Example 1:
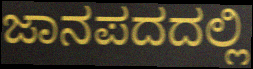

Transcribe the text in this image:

ಜಾನಪದದಲ್ಲಿ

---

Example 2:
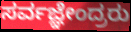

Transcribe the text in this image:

ಸರ್ವಜ್ಞೇಂದ್ರರು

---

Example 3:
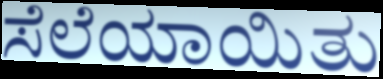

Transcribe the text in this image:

ಸೆಲೆಯಾಯಿತು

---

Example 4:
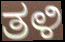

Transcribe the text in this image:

ತಳಿ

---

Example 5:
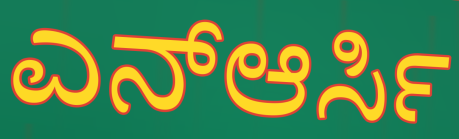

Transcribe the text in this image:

ಎನ್ಆರ್ಸಿ